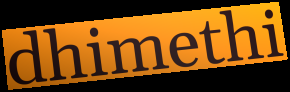
dhimethi